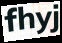
fhyj